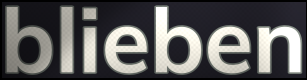
blieben